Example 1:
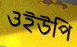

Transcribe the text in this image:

ওইউপি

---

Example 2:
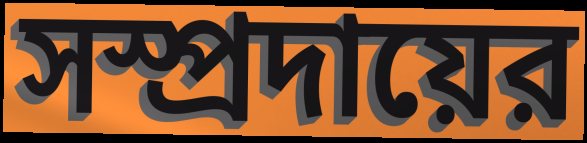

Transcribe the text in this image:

সস্প্রদায়ের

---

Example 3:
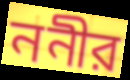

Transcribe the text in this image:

ননীর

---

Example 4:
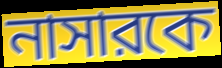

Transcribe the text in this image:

নাসারকে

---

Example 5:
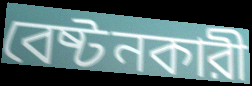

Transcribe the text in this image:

বেষ্টনকারী